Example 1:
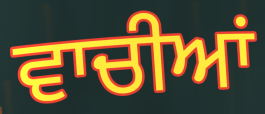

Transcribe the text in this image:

ਵਾਚੀਆਂ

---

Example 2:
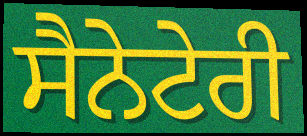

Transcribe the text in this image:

ਸੈਨੇਟੇਰੀ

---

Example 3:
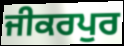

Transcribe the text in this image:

ਜੀਕਰਪੁਰ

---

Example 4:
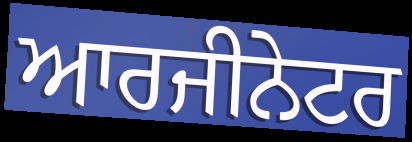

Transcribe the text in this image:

ਆਰਜੀਨੇਟਰ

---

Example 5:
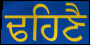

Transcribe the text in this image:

ਢਹਿਣੈ